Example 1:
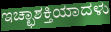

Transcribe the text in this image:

ಇಚ್ಛಾಶಕ್ತಿಯಾದಳು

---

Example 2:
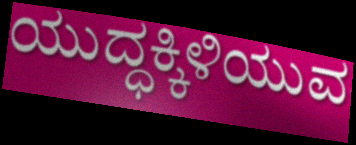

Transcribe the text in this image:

ಯುದ್ಧಕ್ಕಿಳಿಯುವ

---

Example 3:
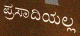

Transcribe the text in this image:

ಪ್ರಸಾದಿಯಲ್ಲ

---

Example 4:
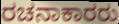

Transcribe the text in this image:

ರಚನಾಕಾರರು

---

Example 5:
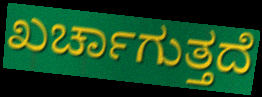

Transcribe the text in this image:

ಖರ್ಚಾಗುತ್ತದೆ